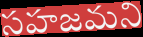
సహజమని